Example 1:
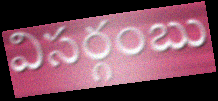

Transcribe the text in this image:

విసర్గంబు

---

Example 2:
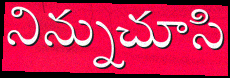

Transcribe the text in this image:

నిన్నుచూసి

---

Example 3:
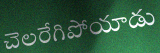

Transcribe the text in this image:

చెలరేగిపోయాడు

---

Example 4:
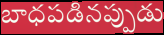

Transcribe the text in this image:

బాధపడినప్పుడు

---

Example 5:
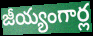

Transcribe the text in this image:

జీయ్యంగార్ల